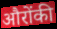
औरोंकी